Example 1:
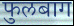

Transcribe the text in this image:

फुलबाग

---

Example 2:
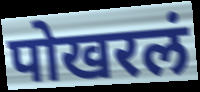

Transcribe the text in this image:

पोखरलं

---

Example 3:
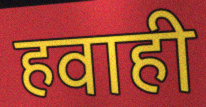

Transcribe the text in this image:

हवाही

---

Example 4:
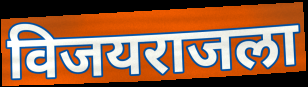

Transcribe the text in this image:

विजयराजला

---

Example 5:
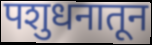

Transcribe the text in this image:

पशुधनातून